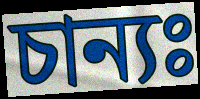
চান্যঃ